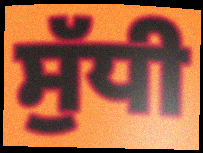
ਸੁੱਧੀ